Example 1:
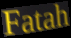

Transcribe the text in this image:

Fatah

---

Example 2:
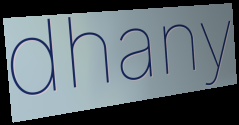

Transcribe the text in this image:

dhany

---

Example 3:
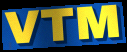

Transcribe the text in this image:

VTM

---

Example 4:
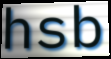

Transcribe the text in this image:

hsb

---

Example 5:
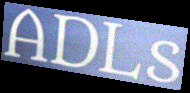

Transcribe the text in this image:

ADLs